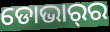
ଡୋଭାର୍‌ର